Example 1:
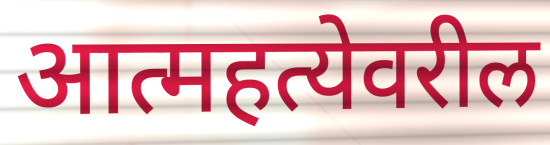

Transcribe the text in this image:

आत्महत्येवरील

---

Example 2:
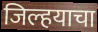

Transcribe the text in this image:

जिल्हयाचा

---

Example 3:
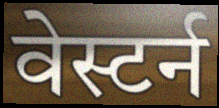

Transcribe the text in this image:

वेस्टर्न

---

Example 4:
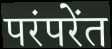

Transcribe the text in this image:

परंपरेंत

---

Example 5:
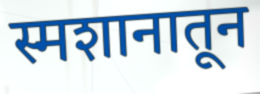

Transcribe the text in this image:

स्मशानातून